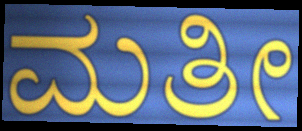
ಮತೀ